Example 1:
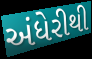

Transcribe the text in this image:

અંધેરીથી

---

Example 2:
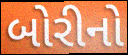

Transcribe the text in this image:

બોરીનો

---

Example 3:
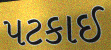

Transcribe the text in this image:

પટકાઈ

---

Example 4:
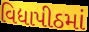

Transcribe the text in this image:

વિદ્યાપીઠમાં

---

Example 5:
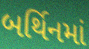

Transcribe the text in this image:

બર્થિનમાં